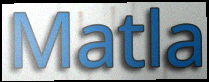
Matla